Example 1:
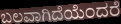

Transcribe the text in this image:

ಬಲವಾಗಿದೆಯೆಂದರೆ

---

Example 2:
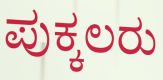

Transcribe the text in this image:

ಪುಕ್ಕಲರು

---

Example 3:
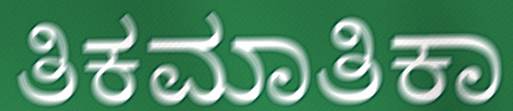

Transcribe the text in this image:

ತಿಕಮಾತಿಕಾ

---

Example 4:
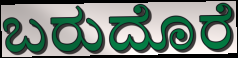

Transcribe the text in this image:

ಬರುದೊರೆ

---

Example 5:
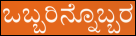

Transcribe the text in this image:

ಒಬ್ಬರಿನ್ನೊಬ್ಬರ